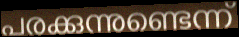
പരക്കുന്നുണ്ടെന്ന്